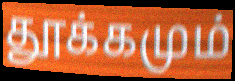
தூக்கமும்